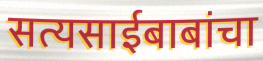
सत्यसाईबाबांचा